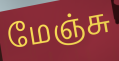
மேஞ்சு